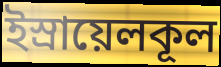
ইস্রায়েলকূল